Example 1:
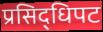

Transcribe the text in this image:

प्रसिद्धिपट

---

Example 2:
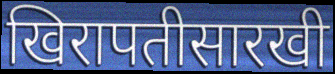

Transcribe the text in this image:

खिरापतीसारखी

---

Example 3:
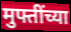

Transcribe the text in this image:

मुफ्तींच्या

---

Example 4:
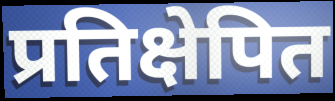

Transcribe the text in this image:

प्रतिक्षेपित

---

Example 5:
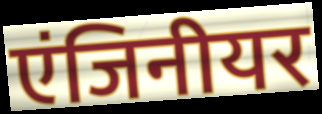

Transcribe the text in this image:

एंजिनीयर